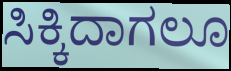
ಸಿಕ್ಕಿದಾಗಲೂ